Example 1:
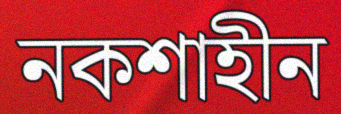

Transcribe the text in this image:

নকশাহীন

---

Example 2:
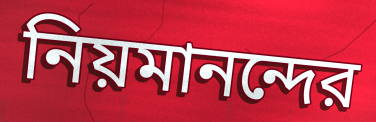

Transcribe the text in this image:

নিয়মানন্দের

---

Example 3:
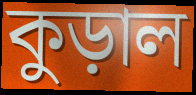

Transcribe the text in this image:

কুড়াল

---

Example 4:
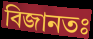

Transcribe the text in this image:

বিজানতঃ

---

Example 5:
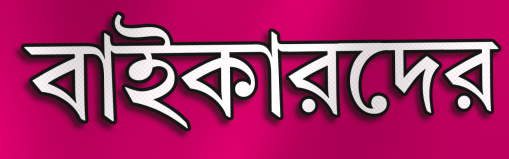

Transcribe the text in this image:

বাইকারদের